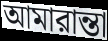
আমারান্তা